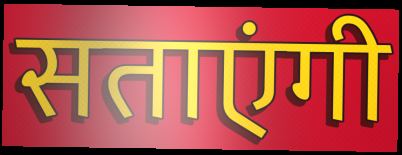
सताएंगी